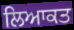
ਲਿਆਕਤ